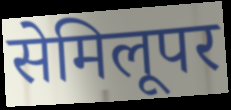
सेमिलूपर